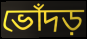
ভোঁদড়